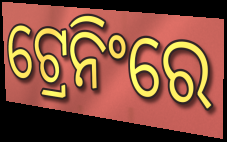
ଟ୍ରେନିଂରେ